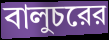
বালুচরের